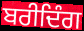
ਬਰੀਦਿੰਗ